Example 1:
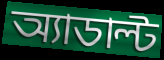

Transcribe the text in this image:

অ্যাডাল্ট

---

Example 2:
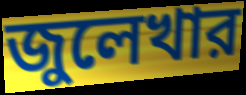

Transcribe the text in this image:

জুলেখার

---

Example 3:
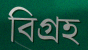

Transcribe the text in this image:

বিগ্রহ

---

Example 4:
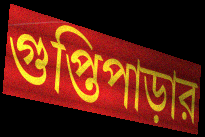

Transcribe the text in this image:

গুপ্তিপাড়ার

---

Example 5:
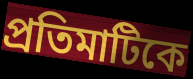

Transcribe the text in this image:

প্রতিমাটিকে